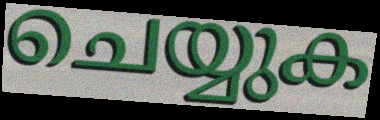
ചെയ്യുക